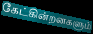
கேட்கின்றனகளும்